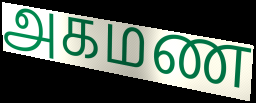
அகமண